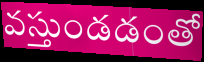
వస్తుండడంతో